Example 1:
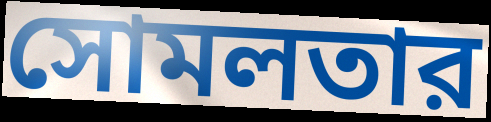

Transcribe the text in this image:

সোমলতার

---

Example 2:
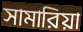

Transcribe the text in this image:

সামারিয়া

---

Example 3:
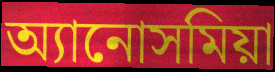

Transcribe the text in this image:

অ্যানোসমিয়া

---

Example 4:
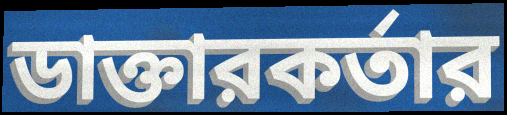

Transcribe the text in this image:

ডাক্তারকর্তার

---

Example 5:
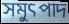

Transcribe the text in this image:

সমুৎপাদ